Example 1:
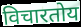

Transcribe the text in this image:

विचारतोय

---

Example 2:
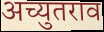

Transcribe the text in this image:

अच्युतराव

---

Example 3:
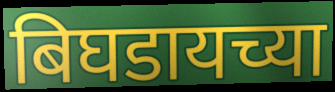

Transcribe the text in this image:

बिघडायच्या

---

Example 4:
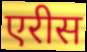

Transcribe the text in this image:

एरीस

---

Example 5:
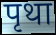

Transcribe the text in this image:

पृथा